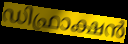
ഡിഫ്രാക്ഷൻ